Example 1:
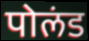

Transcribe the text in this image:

पोलंड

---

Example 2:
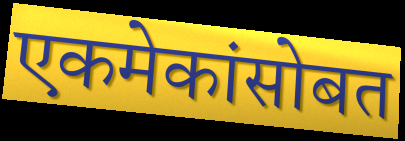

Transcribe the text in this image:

एकमेकांसोबत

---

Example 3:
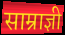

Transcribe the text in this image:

साम्राज्ञी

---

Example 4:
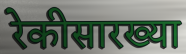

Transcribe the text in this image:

रेकीसारख्या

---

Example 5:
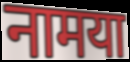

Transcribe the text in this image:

नामया